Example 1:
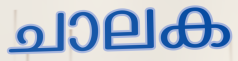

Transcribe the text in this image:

ചാലക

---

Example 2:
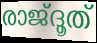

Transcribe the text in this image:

രാജ്ദൂത്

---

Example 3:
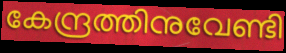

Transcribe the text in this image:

കേന്ദ്രത്തിനുവേണ്ടി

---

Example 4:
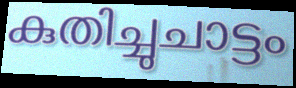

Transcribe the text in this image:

കുതിച്ചുചാട്ടം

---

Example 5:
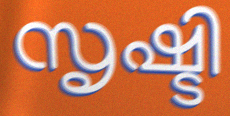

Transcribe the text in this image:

സൃഷ്ടി